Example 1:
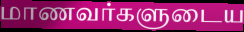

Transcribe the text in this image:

மாணவர்களுடைய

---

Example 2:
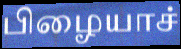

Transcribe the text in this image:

பிழையாச்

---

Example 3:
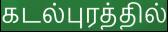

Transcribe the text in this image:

கடல்புரத்தில்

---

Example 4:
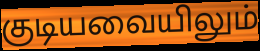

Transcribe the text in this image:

குடியவையிலும்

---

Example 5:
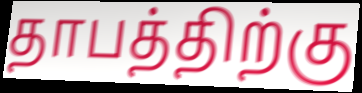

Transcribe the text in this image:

தாபத்திற்கு